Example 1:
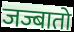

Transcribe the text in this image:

जज्बातो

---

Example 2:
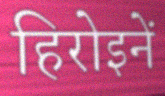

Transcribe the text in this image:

हिरोइनें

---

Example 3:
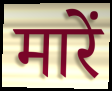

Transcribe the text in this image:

मारें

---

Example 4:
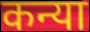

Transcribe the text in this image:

कन्या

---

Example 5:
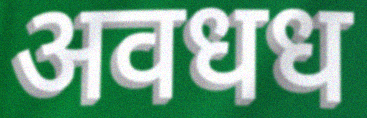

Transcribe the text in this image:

अवधध